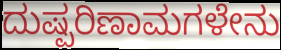
ದುಷ್ಪರಿಣಾಮಗಳೇನು